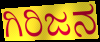
ಗಿರಿಜನ